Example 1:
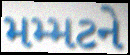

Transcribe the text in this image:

મમ્મટને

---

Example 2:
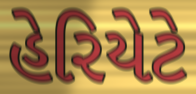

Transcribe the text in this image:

હેરિયેટે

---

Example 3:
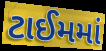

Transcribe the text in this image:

ટાઈમમાં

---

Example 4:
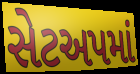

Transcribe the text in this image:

સેટઅપમાં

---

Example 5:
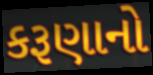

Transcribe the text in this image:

કરૂણાનો